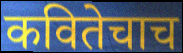
कवितेचाच